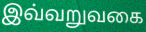
இவ்வறுவகை